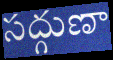
సద్గుణా